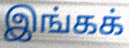
இங்கக்